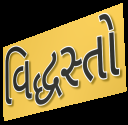
વિદ્ધસ્તો